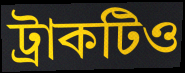
ট্রাকটিও